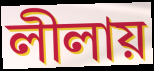
লীলায়